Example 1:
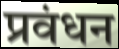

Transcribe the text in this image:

प्रवंधन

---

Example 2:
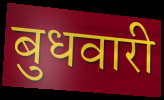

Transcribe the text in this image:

बुधवारी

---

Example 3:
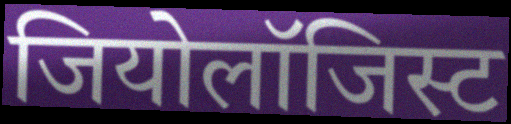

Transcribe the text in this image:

जियोलॉजिस्ट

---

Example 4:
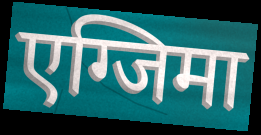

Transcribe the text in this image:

एग्जिमा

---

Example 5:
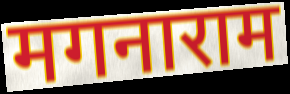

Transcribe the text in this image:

मगनाराम